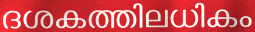
ദശകത്തിലധികം